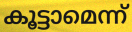
കൂട്ടാമെന്ന്